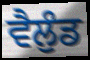
ਵੈਲੁੰਡ